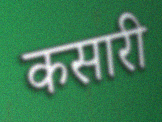
कसारी